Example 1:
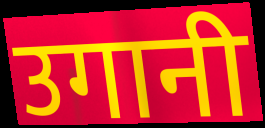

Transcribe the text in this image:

उगानी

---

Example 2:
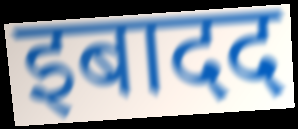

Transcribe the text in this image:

इबादद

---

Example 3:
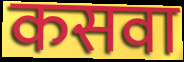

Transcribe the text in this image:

कसवा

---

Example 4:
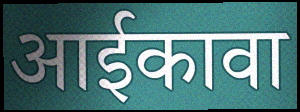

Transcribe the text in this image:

आईकावा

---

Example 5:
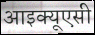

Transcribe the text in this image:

आइक्यूएसी